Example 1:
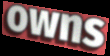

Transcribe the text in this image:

owns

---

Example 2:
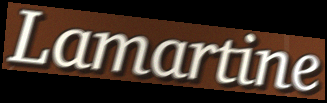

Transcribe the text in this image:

Lamartine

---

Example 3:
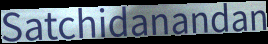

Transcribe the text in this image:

Satchidanandan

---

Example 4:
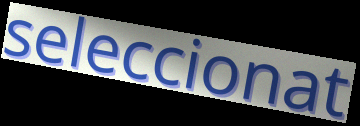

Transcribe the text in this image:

seleccionat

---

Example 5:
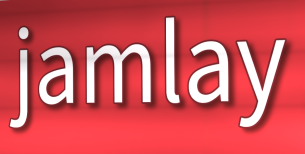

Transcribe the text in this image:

jamlay